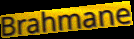
Brahmane